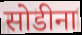
सोडीना